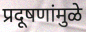
प्रदूषणांमुळे